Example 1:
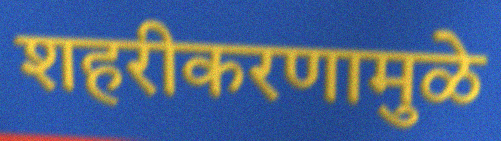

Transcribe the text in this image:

शहरीकरणामुळे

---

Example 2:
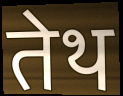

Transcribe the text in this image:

तेथ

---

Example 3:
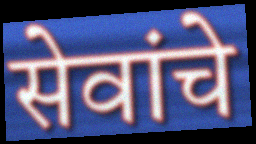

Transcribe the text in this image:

सेवांचे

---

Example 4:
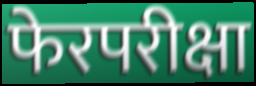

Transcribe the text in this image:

फेरपरीक्षा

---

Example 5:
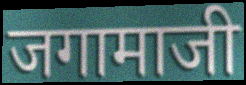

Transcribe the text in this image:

जगामाजी